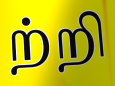
ற்றி